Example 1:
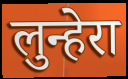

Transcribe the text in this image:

लुन्हेरा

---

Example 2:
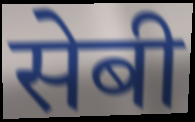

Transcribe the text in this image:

सेबी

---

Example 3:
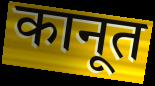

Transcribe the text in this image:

कानूत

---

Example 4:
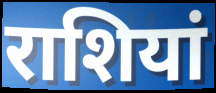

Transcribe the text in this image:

राशियां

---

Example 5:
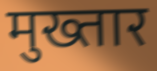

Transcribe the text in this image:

मुख्तार